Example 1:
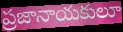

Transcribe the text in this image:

ప్రజానాయకులూ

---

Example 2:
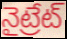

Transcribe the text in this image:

నైట్రేట్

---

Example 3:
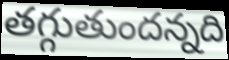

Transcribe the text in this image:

తగ్గుతుందన్నది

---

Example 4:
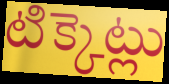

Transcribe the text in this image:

టిక్కెట్లు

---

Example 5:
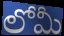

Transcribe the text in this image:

లోమీ